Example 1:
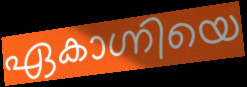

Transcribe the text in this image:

ഏകാഗ്നിയെ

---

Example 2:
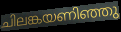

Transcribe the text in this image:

ചിലങ്കയണിഞ്ഞു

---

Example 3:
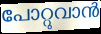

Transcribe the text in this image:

പോറ്റുവാൻ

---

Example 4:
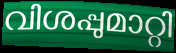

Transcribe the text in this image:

വിശപ്പുമാറ്റി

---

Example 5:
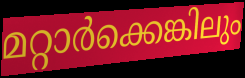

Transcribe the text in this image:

മറ്റാർക്കെങ്കിലും